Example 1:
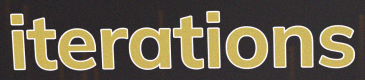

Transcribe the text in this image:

iterations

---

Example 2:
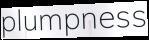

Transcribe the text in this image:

plumpness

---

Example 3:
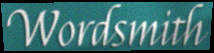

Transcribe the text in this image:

Wordsmith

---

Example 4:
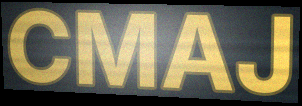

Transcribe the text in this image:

CMAJ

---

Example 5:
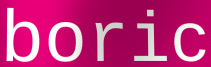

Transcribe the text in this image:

boric